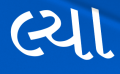
લ્યા